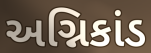
અગ્નિકાંડ